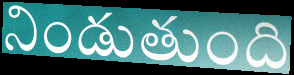
నిండుతుంది